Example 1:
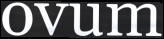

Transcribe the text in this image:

ovum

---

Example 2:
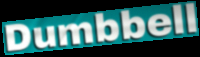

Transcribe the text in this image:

Dumbbell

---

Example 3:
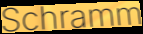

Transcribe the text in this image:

Schramm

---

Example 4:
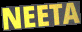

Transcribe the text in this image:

NEETA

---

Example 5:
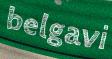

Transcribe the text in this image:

belgavi